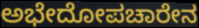
ಅಭೇದೋಪಚಾರೇನ